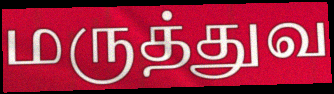
மருத்துவ